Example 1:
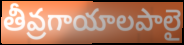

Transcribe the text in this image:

తీవ్రగాయాలపాలై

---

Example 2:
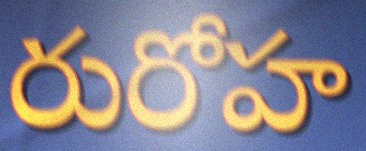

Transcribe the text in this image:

రురోహ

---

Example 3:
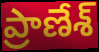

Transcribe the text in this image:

ప్రాణేశ్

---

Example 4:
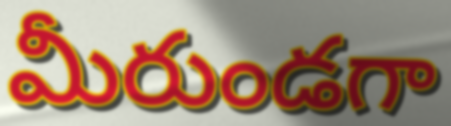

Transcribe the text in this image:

మీరుండగా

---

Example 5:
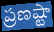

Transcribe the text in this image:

ప్రణష్టా